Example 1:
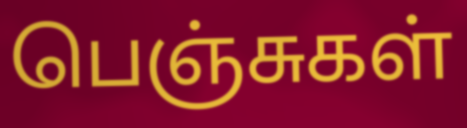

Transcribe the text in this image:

பெஞ்சுகள்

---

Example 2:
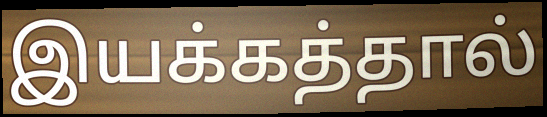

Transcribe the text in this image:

இயக்கத்தால்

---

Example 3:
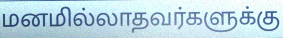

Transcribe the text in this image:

மனமில்லாதவர்களுக்கு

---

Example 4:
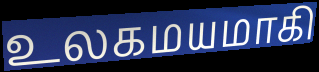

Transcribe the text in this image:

உலகமயமாகி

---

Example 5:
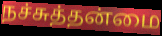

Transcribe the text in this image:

நச்சுத்தன்மை